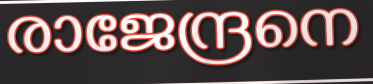
രാജേന്ദ്രനെ